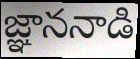
జ్ఞాననాడి